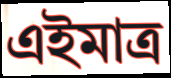
এইমাত্র